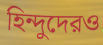
হিন্দুদেরও